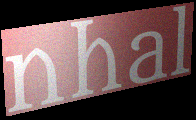
nhal